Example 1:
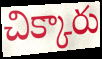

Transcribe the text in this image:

చిక్కారు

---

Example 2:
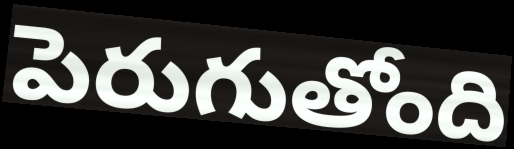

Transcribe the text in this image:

పెరుగుతోంది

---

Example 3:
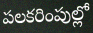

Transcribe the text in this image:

పలకరింపుల్లో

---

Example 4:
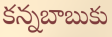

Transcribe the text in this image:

కన్నబాబుకు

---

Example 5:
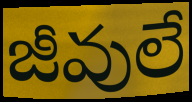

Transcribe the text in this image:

జీవులే